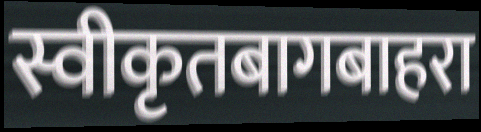
स्वीकृतबागबाहरा